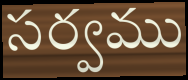
సర్వము